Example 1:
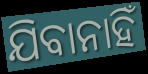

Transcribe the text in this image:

ଯିବାନାହିଁ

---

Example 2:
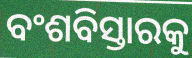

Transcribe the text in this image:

ବଂଶବିସ୍ତାରକୁ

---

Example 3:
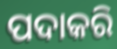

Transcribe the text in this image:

ପଦାକରି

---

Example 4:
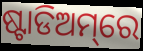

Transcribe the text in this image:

ଷ୍ଟାଡିଅମ୍‌ରେ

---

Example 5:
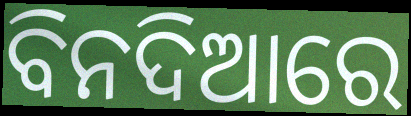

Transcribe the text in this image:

ବିନଦିଆରେ